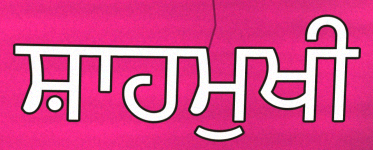
ਸ਼ਾਹਮੁਖੀ